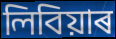
লিবিয়াৰ